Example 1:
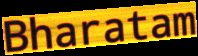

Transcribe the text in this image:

Bharatam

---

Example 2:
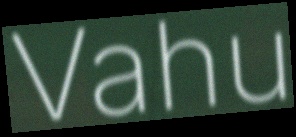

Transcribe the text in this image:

Vahu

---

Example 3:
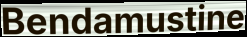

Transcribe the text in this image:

Bendamustine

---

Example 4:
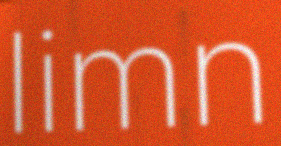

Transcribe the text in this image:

limn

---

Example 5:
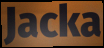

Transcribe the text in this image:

Jacka